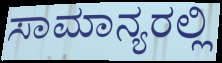
ಸಾಮಾನ್ಯರಲ್ಲಿ